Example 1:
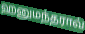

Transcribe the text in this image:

ஹனுமந்தராவ்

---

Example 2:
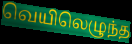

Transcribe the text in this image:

வெயிலெழுந்த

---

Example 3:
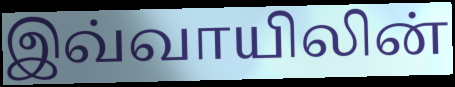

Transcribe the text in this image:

இவ்வாயிலின்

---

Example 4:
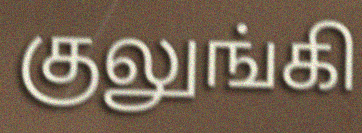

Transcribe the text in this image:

குலுங்கி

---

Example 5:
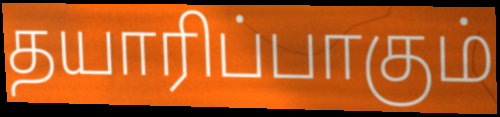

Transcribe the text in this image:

தயாரிப்பாகும்